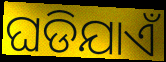
ଘଡିଯାଏଁ